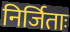
निर्जिताः